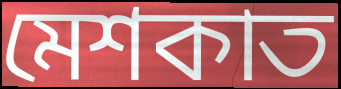
মেশকাত